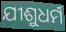
ଯୀଶୁଧର୍ମ